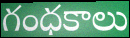
గంధకాలు